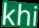
khi